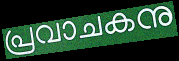
പ്രവാചകനു